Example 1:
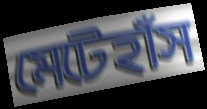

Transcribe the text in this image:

মেটেহাঁস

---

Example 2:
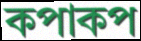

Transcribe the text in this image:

কপাকপ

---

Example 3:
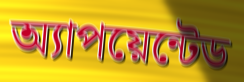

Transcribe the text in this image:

অ্যাপয়েন্টেড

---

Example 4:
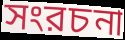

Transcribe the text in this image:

সংরচনা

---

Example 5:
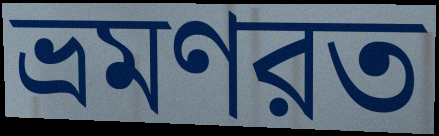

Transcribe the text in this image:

ভ্রমণরত